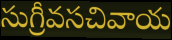
సుగ్రీవసచివాయ